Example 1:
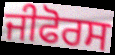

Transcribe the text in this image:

ਜੀਫੋਰਸ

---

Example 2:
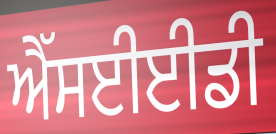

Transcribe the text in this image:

ਐੱਸਈਈਡੀ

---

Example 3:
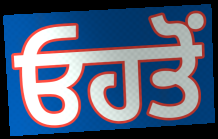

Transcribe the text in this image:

ਓਹਤੋਂ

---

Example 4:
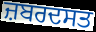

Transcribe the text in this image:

ਜ਼ਬਰਦਸਤ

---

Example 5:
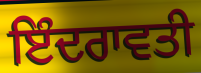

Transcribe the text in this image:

ਇੰਦਰਾਵਤੀ